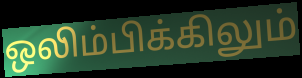
ஒலிம்பிக்கிலும்